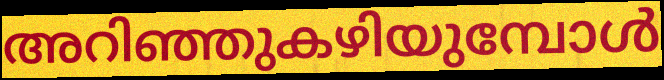
അറിഞ്ഞുകഴിയുമ്പോൾ